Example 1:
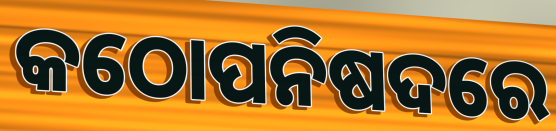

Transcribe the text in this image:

କଠୋପନିଷଦରେ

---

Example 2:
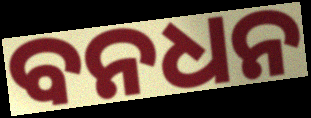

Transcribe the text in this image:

ବନଧନ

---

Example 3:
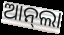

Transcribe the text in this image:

ଆନ୍‌ଲା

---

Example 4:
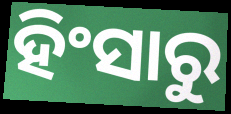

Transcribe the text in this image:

ହିଂସାରୁ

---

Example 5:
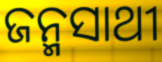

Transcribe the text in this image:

ଜନ୍ମସାଥୀ